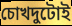
চোখদুটোই